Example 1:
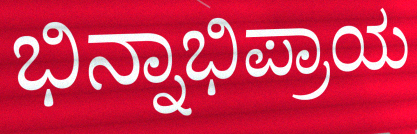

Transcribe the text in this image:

ಭಿನ್ನಾಭಿಪ್ರಾಯ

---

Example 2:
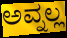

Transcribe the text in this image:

ಅವ್ನಲ್ಲ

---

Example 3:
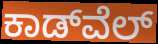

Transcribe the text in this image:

ಕಾಡ್‌ವೆಲ್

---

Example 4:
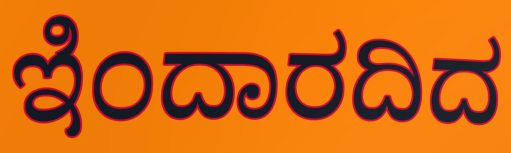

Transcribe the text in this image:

ಇಿಂದಾರದಿದ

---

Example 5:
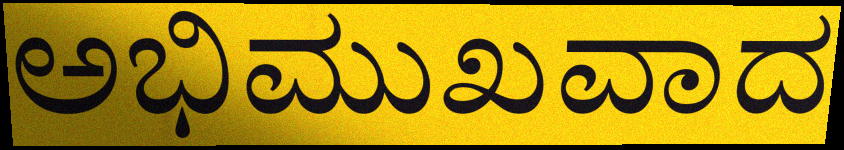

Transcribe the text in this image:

ಅಭಿಮುಖವಾದ